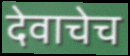
देवाचेच